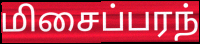
மிசைப்பரந்